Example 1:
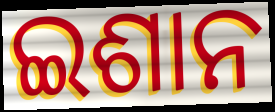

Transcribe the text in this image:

ଇଶାନ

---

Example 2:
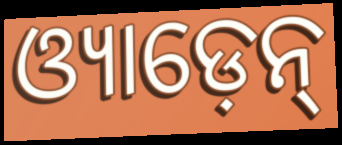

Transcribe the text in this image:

ଓ୍ୟାଡ଼େନ୍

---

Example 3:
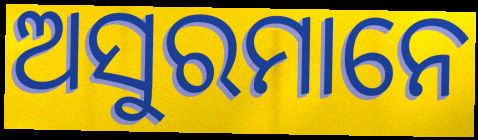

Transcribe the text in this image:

ଅସୁରମାନେ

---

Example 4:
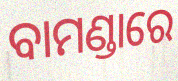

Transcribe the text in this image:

ବାମଣ୍ଡାରେ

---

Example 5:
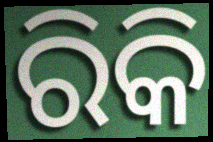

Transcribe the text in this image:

ରିକି